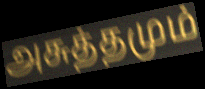
அசுத்தமும்